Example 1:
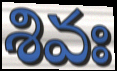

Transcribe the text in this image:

శివః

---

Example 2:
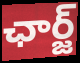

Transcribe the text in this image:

ఛార్జ్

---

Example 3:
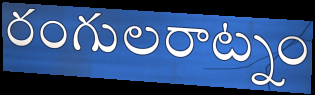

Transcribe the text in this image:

రంగులరాట్నం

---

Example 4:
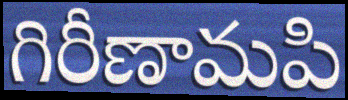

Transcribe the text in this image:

గిరీణామపి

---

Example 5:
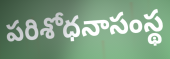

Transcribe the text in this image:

పరిశోధనాసంస్థ